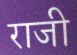
राजी